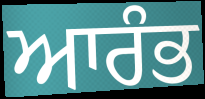
ਆਰੰਭ